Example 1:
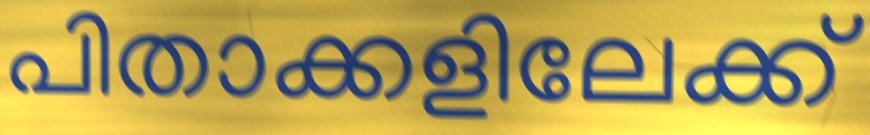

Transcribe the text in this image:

പിതാക്കളിലേക്ക്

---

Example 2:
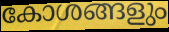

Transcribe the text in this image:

കോശങ്ങളും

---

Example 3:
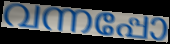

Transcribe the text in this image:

വന്നപ്പോ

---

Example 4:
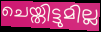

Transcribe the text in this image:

ചെയ്തിട്ടുമില്ല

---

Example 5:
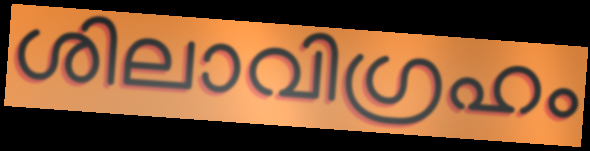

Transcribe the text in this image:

ശിലാവിഗ്രഹം